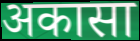
अकासा